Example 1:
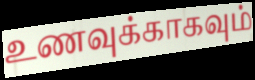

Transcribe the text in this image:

உணவுக்காகவும்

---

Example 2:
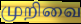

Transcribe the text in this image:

முறிவை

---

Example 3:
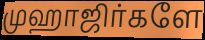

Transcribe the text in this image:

முஹாஜிர்களே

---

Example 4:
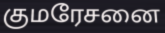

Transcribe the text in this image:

குமரேசனை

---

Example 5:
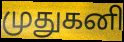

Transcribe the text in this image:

முதுகனி